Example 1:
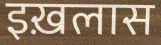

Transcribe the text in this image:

इख़लास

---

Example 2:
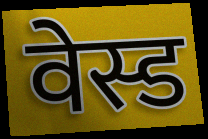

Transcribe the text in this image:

वेस्ड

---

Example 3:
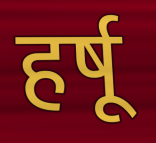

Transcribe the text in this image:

हर्षू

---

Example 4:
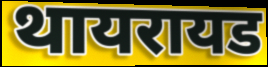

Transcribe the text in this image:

थायरायड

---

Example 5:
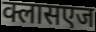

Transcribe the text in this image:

क्लासएज